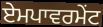
ਏਮਪਾਵਰਮੇਂਟ